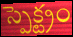
స్పెక్ట్రం